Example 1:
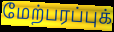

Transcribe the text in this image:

மேற்பரப்புக்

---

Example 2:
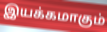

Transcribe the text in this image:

இயக்கமாகும்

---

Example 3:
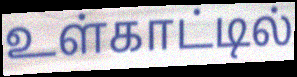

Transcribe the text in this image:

உள்காட்டில்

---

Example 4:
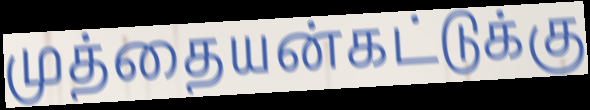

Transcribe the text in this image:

முத்தையன்கட்டுக்கு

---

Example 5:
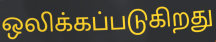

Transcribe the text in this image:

ஒலிக்கப்படுகிறது